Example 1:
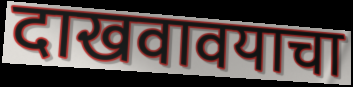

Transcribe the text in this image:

दाखवावयाचा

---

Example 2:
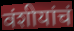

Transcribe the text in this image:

वंशीयांचं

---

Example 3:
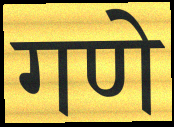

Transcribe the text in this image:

गणे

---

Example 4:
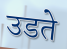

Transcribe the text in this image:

उडते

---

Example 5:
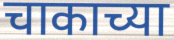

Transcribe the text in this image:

चाकाच्या